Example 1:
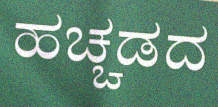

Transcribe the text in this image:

ಹಚ್ಚಡದ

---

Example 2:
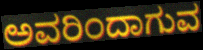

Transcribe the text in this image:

ಅವರಿಂದಾಗುವ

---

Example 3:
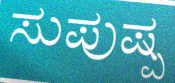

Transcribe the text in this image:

ಸುಪುಷ್ಪ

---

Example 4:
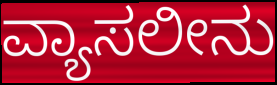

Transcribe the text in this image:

ವ್ಯಾಸಲೀನು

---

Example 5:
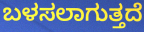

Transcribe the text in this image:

ಬಳಸಲಾಗುತ್ತದೆ